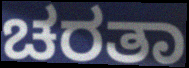
ಚರತಾ